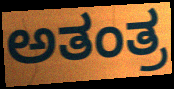
ಅತಂತ್ರ